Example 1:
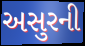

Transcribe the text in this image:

અસુરની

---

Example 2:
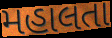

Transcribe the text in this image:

મહાલતા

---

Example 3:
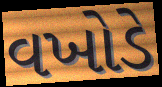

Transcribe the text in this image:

વખોડે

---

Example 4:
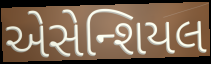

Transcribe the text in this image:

એસેન્શિયલ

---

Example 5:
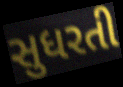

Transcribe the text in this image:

સુધરતી